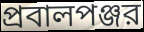
প্রবালপঞ্জর